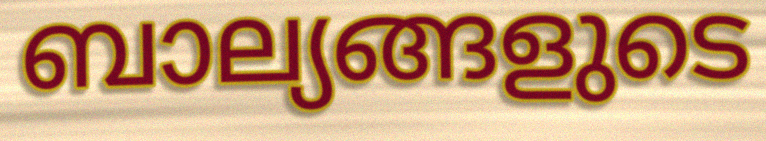
ബാല്യങ്ങളുടെ